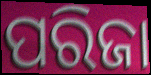
ପରିଜା